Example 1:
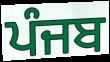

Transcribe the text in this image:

ਪੰਜਬ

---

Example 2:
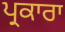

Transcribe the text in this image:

ਪ੍ਰਕਾਰਾ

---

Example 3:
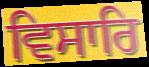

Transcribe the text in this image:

ਵਿਸਾਰਿ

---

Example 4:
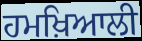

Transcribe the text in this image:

ਹਮਖ਼ਿਆਲੀ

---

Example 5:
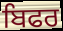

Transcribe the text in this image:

ਬਿਫਰ